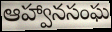
ఆహ్వానసంఘ